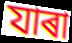
যাৰা